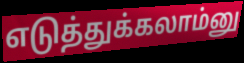
எடுத்துக்கலாம்னு